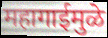
महागाईमुळे